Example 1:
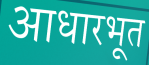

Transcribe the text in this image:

आधारभूत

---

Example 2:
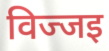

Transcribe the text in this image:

विज्जइ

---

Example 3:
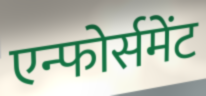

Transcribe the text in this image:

एन्फोर्समेंट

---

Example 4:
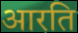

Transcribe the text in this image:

आरति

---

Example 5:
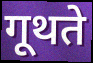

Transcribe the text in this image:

गूथते